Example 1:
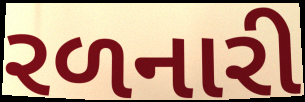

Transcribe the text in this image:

રળનારી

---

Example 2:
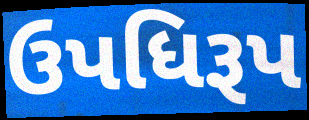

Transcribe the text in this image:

ઉપધિરૂપ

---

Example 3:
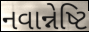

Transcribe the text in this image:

નવાન્નેષ્ટિ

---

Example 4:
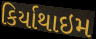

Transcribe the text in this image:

કિર્યાથાઇમ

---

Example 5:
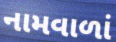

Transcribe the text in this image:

નામવાળાં